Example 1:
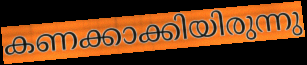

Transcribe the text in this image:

കണക്കാക്കിയിരുന്നു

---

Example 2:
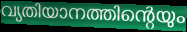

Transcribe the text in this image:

വ്യതിയാനത്തിന്റെയും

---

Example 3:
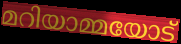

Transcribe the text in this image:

മറിയാമ്മയോട്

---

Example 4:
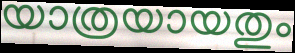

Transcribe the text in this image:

യാത്രയായതും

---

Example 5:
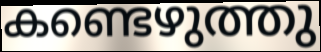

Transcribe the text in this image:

കണ്ടെഴുത്തു